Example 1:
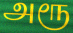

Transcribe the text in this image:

அரூ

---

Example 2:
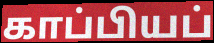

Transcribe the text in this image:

காப்பியப்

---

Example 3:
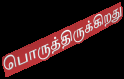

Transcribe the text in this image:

பொருத்திருக்கிறது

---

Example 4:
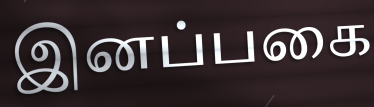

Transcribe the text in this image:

இனப்பகை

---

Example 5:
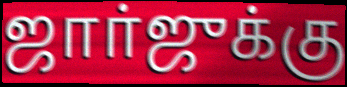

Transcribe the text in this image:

ஜார்ஜுக்கு